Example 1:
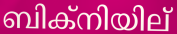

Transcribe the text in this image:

ബിക്നിയില്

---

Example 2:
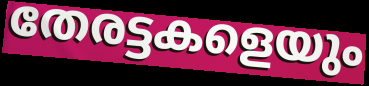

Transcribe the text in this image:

തേരട്ടകളെയും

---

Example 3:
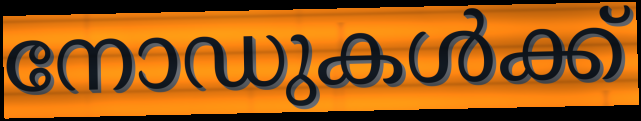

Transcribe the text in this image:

നോഡുകൾക്ക്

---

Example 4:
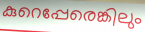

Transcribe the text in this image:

കുറെപ്പേരെങ്കിലും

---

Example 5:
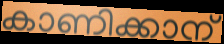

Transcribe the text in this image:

കാണിക്കാന്